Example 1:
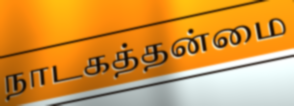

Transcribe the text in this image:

நாடகத்தன்மை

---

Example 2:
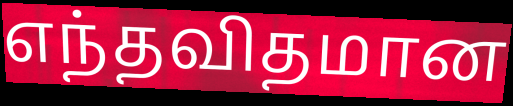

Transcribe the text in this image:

எந்தவிதமான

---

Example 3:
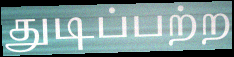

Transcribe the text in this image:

துடிப்பற்ற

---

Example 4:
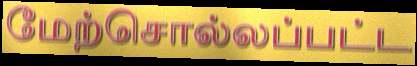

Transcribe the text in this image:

மேற்சொல்லப்பட்ட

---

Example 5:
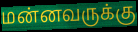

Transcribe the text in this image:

மன்னவருக்கு